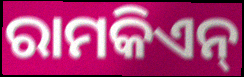
ରାମକିଏନ୍